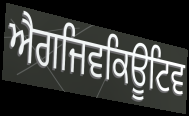
ਐਗਜਿਵਕਿਊਟਿਵ